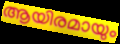
ആയിരമായും